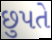
છુપતે